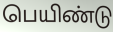
பெயிண்டு